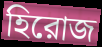
হিরোজ